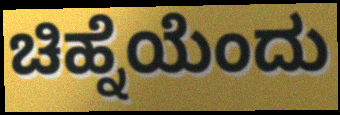
ಚಿಹ್ನೆಯೆಂದು